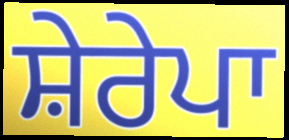
ਸ਼ੇਰੇਪਾ